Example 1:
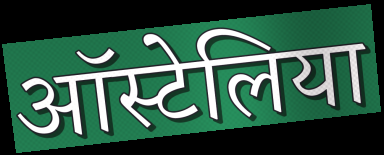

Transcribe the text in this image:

ऑस्टेलिया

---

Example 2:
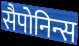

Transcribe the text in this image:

सैपोनिन्स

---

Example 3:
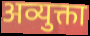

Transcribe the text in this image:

अव्युक्ता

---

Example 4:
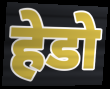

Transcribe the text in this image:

हेडो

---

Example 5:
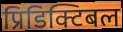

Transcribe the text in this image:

प्रिडिक्टिबल